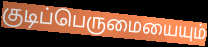
குடிப்பெருமையையும்